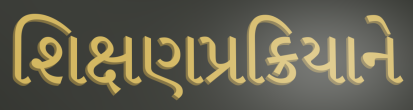
શિક્ષણપ્રક્રિયાને